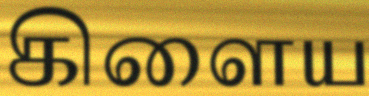
கிளைய